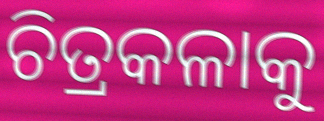
ଚିତ୍ରକଳାକୁ